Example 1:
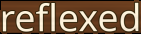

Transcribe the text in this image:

reflexed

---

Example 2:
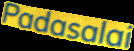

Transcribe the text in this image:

Padasalai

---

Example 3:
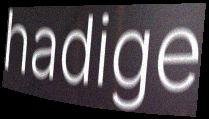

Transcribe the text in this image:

hadige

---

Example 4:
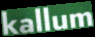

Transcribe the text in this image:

kallum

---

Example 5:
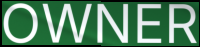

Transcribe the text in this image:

OWNER